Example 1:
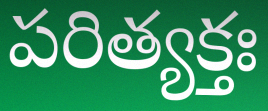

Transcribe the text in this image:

పరిత్యక్తః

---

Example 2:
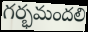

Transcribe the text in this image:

గర్భమందలి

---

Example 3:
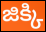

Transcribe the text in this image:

జిక్కి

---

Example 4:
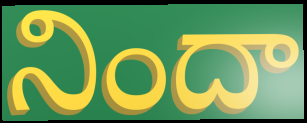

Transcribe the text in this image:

నిందా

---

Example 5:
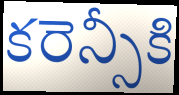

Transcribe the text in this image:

కరెన్సీకి